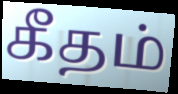
கீதம்